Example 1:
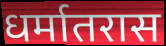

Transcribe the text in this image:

धर्मातरास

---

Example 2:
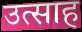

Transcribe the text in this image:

उत्साह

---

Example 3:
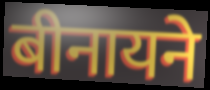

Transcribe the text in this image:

बीनायने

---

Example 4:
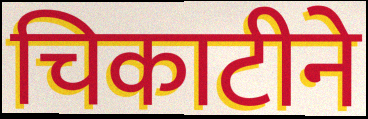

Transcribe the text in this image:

चिकाटीने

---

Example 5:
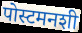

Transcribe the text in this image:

पोस्टमनशी